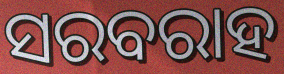
ସରବରାହ